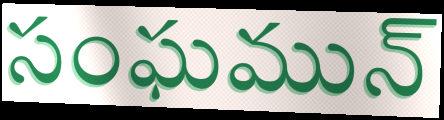
సంఘమున్